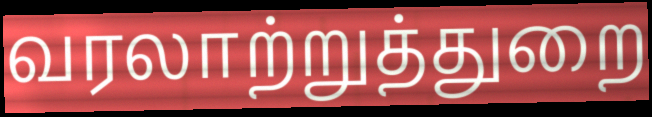
வரலாற்றுத்துறை